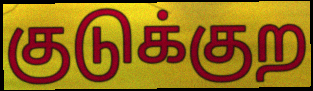
குடுக்குற